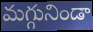
మగ్గునిండా